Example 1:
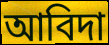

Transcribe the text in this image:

আবিদা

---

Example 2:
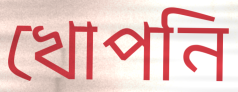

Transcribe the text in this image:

খোপনি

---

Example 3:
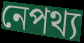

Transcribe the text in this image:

নেপথ্য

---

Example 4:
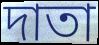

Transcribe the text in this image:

দাতা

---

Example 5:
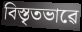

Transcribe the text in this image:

বিস্তৃতভাৱে